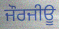
ਜੌਰਜੀਊ